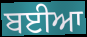
ਬਈਆ